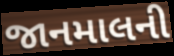
જાનમાલની